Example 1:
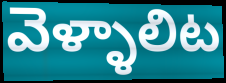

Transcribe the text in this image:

వెళ్ళాలిట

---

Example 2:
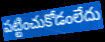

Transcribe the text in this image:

పట్టించుకోడంలేదు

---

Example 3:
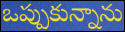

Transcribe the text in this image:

ఒప్పుకున్నాను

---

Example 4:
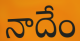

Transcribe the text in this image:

నాదేం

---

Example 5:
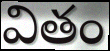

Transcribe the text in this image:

వితం